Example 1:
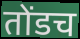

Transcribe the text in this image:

तोंडच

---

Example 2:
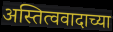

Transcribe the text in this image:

अस्तित्ववादाच्या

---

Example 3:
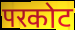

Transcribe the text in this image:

परकोट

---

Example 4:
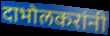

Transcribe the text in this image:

दाभोलकरांनी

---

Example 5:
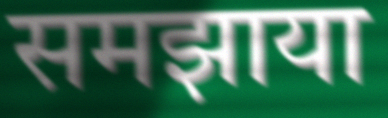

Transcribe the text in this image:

समझाया